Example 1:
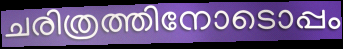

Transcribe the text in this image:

ചരിത്രത്തിനോടൊപ്പം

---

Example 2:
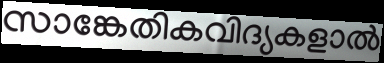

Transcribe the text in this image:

സാങ്കേതികവിദ്യകളാൽ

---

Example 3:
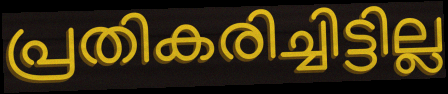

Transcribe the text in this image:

പ്രതികരിച്ചിട്ടില്ല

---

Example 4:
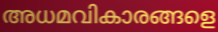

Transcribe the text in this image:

അധമവികാരങ്ങളെ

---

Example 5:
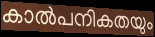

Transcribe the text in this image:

കാൽപനികതയും